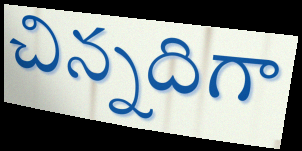
చిన్నదిగా